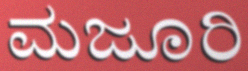
ಮಜೂರಿ